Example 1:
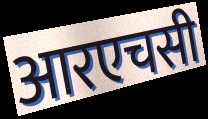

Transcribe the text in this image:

आरएचसी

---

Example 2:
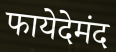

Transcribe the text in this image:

फायेदेमंद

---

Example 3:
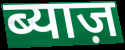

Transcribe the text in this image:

ब्याज़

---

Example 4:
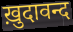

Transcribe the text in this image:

ख़ुदावन्द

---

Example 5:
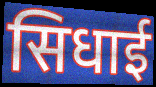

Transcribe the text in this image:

सिधाई